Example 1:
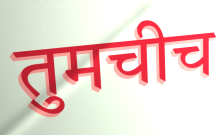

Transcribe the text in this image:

तुमचीच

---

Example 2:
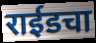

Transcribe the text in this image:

राईडचा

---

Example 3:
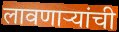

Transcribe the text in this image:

लावणाऱ्यांची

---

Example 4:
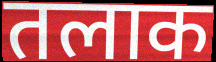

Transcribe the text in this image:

तलाक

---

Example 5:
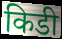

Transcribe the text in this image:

किडी